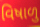
વિષાળુ